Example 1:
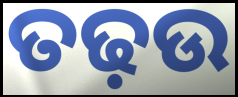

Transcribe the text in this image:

ତଢ଼ଉ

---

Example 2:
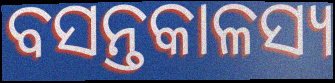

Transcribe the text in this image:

ବସନ୍ତକାଳସ୍ୟ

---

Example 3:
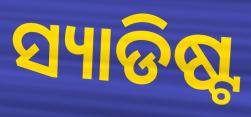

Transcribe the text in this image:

ସ୍ୟାଡିଷ୍ଟ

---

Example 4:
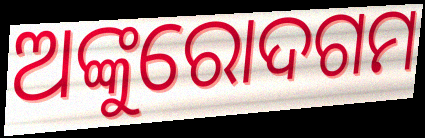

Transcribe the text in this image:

ଅଙ୍କୁରୋଦଗମ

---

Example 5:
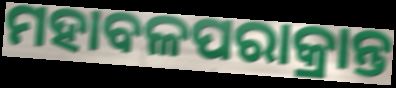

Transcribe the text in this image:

ମହାବଳପରାକ୍ରାନ୍ତ